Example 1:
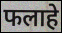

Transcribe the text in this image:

फलाहे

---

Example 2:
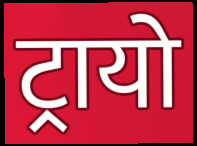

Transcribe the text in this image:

ट्रायो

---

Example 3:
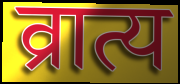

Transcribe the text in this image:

व्रात्य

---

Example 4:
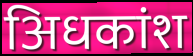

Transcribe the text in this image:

अिधकांश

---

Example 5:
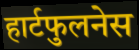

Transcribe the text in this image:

हार्टफुलनेस